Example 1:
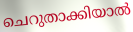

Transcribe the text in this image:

ചെറുതാക്കിയാൽ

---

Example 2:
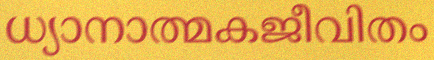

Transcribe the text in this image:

ധ്യാനാത്മകജീവിതം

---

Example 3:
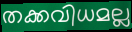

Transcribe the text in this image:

തക്കവിധമല്ല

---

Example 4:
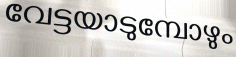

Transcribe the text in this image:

വേട്ടയാടുമ്പോഴും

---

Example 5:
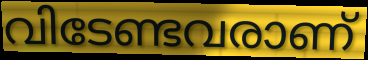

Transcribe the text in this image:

വിടേണ്ടവരാണ്